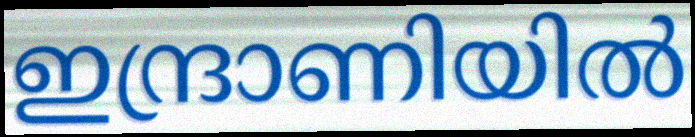
ഇന്ദ്രാണിയിൽ